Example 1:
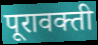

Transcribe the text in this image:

पूरावक्ती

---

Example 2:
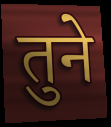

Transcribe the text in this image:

तुने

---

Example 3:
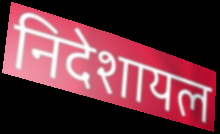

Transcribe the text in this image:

निदेशायल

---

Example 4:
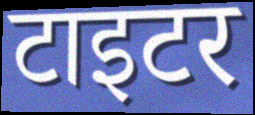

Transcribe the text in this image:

टाइटर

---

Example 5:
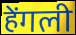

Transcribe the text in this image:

हेंगली